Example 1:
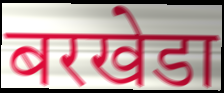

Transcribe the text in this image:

बरखेडा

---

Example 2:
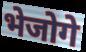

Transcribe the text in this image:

भेजोगे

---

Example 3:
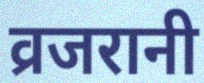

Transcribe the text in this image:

व्रजरानी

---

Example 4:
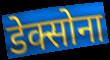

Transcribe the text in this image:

डेक्सोना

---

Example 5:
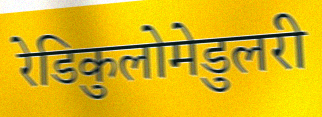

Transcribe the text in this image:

रेडिकुलोमेडुलरी